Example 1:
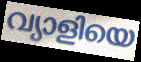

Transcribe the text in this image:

വ്യാളിയെ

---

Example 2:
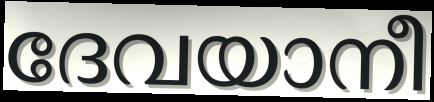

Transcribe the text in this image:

ദേവയാനീ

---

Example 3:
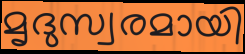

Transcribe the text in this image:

മൃദുസ്വരമായി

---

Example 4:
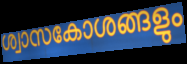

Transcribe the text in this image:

ശ്വാസകോശങ്ങളും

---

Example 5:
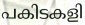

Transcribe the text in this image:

പകിടകളി